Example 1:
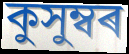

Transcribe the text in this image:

কুসুম্বৰ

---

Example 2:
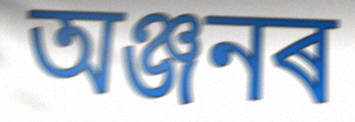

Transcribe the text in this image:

অঞ্জনৰ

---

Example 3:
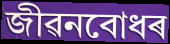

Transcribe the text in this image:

জীৱনবোধৰ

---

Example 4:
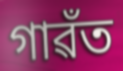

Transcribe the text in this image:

গাৱঁত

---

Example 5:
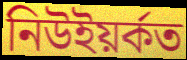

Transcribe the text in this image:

নিউইয়ৰ্কত